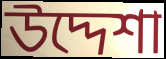
উদ্দেশা